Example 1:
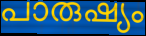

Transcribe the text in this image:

പാരുഷ്യം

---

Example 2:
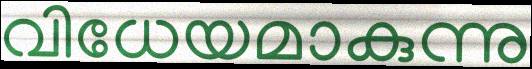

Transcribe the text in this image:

വിധേയമാകുന്നു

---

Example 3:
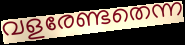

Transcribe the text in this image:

വളരേണ്ടതെന്ന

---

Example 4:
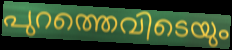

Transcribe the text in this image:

പുറത്തെവിടെയും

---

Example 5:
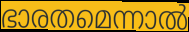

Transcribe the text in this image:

ഭാരതമെന്നാൽ